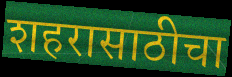
शहरासाठीचा